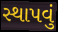
સ્થાપવું